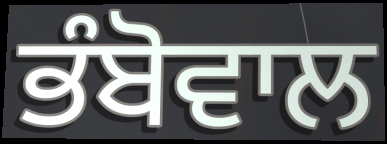
ਭੰਬੋਵਾਲ